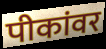
पीकांवर